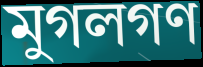
মুগলগণ